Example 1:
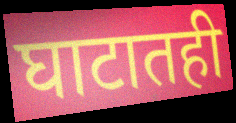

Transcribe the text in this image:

घाटातही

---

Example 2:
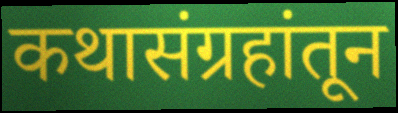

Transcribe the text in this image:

कथासंग्रहांतून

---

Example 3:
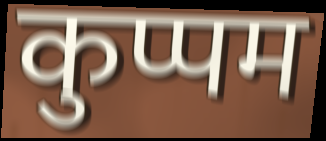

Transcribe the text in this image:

कुप्पम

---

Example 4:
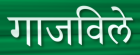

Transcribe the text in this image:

गाजविले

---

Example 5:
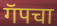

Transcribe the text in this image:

गॅपचा